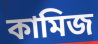
কামিজ